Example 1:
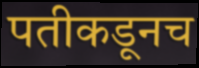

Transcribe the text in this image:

पतीकडूनच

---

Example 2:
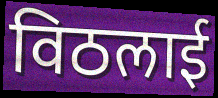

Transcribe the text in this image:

विठलाई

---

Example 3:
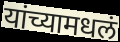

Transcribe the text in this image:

यांच्यामधलं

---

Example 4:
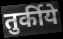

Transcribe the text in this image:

तुर्कीये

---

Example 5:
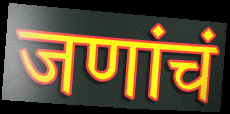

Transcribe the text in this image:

जणांचं